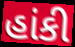
હાંકી